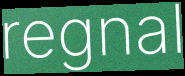
regnal